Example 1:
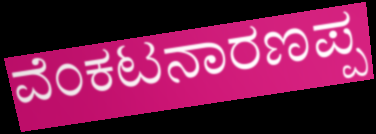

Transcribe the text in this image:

ವೆಂಕಟನಾರಣಪ್ಪ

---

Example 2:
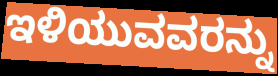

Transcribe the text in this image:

ಇಳಿಯುವವರನ್ನು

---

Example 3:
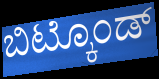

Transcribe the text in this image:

ಬಿಟ್ಕೊಂಡ್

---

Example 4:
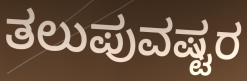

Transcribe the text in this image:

ತಲುಪುವಷ್ಟರ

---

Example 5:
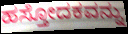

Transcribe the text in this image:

ಹಸ್ತೋದಕವನ್ನು